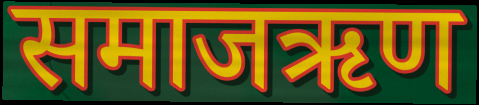
समाजऋण